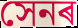
সেনৰ